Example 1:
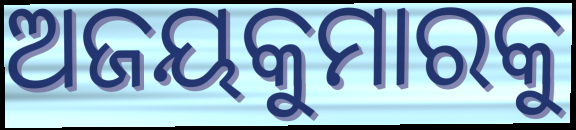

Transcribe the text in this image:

ଅଜୟକୁମାରକୁ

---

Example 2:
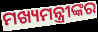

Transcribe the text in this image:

ମଖ୍ୟମନ୍ତ୍ରୀଙ୍କର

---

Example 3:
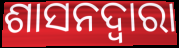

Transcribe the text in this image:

ଶାସନଦ୍ୱାରା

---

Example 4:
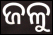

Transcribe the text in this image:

ଜଳୁ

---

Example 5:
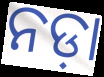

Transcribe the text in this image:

ନଡ଼ା